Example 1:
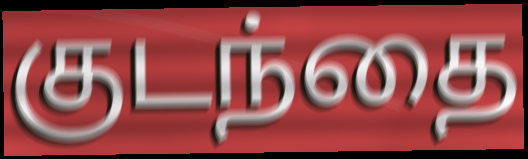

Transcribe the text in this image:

குடந்தை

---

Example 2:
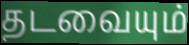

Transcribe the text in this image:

தடவையும்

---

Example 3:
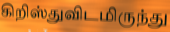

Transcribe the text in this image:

கிறிஸ்துவிடமிருந்து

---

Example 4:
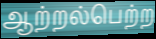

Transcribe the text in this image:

ஆற்றல்பெற்ற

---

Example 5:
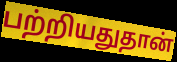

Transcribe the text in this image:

பற்றியதுதான்